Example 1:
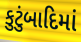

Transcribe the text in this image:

કુટુંબાદિમાં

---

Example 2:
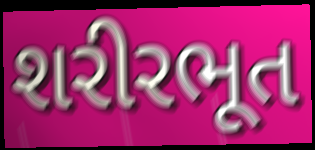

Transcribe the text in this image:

શરીરભૂત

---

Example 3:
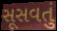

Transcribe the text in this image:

સૂસવતું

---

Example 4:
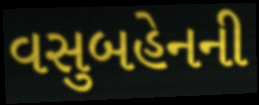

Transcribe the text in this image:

વસુબહેનની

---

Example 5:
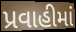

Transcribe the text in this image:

પ્રવાહીમાં